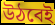
উঠবেই